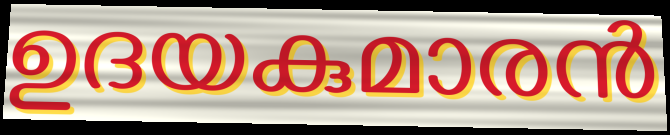
ഉദയകുമാരൻ